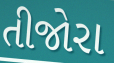
તીજોરા